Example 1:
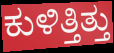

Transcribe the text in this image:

ಕುಳಿತ್ತಿತ್ತು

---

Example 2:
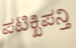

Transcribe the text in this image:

ಪಟಿಕ್ಖಿಪನ್ತಿ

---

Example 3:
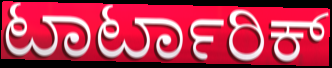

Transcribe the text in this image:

ಟಾರ್ಟಾರಿಕ್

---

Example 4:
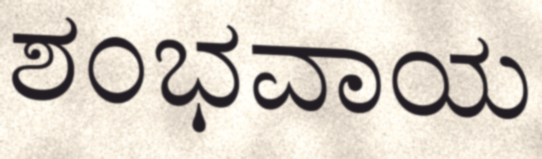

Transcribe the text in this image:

ಶಂಭವಾಯ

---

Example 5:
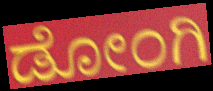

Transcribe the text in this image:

ಡೋಂಗಿ